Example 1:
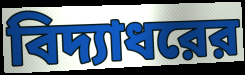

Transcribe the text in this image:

বিদ্যাধরের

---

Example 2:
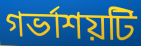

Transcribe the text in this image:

গর্ভাশয়টি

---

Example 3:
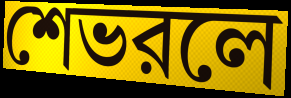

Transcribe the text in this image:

শেভরলে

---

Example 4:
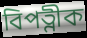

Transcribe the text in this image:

বিপত্নীক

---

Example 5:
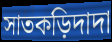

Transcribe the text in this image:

সাতকড়িদাদা